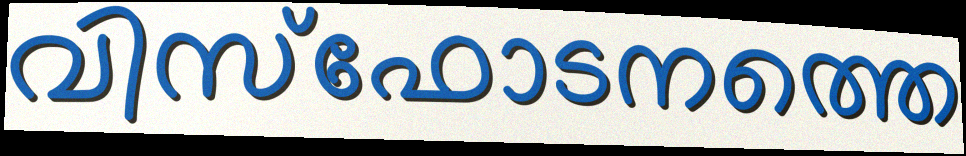
വിസ്ഫോടനത്തെ